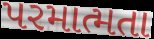
પરમાત્મતા